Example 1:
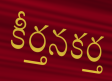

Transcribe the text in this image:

కీర్తనకర్త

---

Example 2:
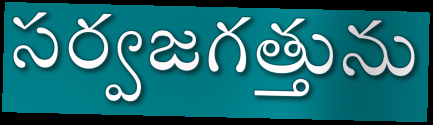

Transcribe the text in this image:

సర్వజగత్తును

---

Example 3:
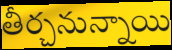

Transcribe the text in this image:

తీర్చనున్నాయి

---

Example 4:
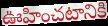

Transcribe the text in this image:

ఊహించటానికి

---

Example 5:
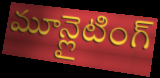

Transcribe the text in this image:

మూన్లైటింగ్